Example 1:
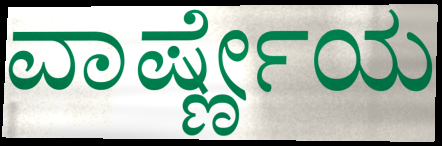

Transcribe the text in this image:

ವಾರ್ಷ್ಣೇಯ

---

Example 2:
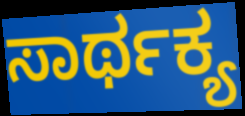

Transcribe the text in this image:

ಸಾರ್ಥಕ್ಯ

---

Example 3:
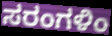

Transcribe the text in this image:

ಸರಂಗಳಿಂ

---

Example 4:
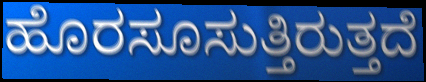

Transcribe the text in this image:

ಹೊರಸೂಸುತ್ತಿರುತ್ತದೆ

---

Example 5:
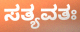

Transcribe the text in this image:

ಸತ್ಯವತಃ